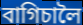
বাগিচালৈ